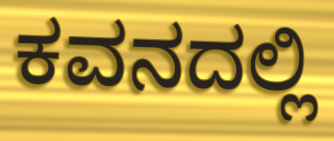
ಕವನದಲ್ಲಿ